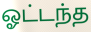
ஓட்டந்த